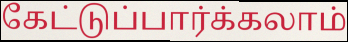
கேட்டுப்பார்க்கலாம்